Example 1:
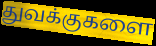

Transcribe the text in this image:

துவக்குகளை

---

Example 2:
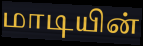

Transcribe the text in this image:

மாடியின்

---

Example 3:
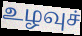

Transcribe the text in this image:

உழவுச்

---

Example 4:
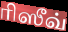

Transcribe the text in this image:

ரிஸீவ்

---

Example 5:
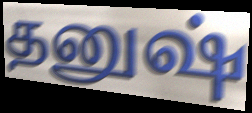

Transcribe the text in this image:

தனுஷ்